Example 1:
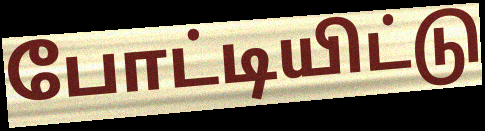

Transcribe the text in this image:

போட்டியிட்டு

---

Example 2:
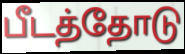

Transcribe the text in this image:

பீடத்தோடு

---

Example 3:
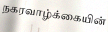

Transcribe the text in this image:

நகரவாழ்க்கையின்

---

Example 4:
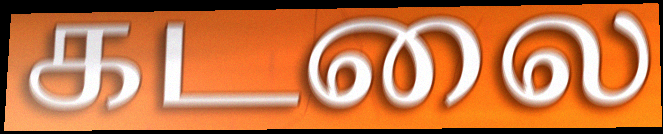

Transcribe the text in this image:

கடலை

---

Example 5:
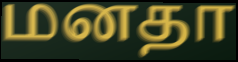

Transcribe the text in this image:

மனதா